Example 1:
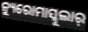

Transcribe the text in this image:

ନ୍ୟୁରୋମାସ୍କୁଲାର୍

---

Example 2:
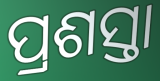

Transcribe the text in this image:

ପ୍ରଶସ୍ତା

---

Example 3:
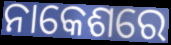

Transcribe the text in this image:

ନାକେଶରେ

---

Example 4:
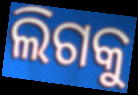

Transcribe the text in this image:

ଲିଗକୁ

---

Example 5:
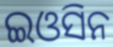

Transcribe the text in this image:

ଇଓସିନ